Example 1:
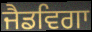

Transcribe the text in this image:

ਜੈਡਵਿਗਾ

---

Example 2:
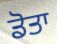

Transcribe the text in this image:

ਡੋਤਾ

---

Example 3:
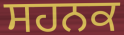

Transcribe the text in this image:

ਸਹਨਕ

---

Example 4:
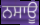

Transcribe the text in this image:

ਨਸਾਊ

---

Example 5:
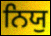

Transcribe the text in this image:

ਨਿਯੁ